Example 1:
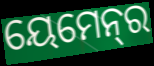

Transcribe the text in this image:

ୟେମେନ୍‌ର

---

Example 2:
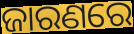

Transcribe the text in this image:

ଜାରଣରେ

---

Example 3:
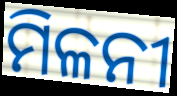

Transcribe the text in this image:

ମିଳନୀ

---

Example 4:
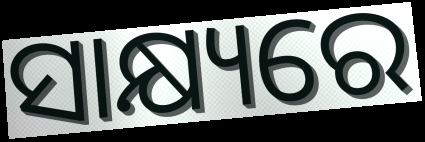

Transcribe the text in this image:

ସାକ୍ଷ୍ୟରେ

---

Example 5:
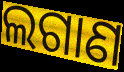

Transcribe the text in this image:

ଲଗାଣ